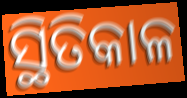
ସ୍ଥିତିକାଳ